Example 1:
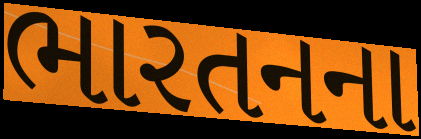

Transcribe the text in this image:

ભારતનના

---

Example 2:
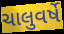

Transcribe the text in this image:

ચાલુવર્ષે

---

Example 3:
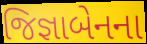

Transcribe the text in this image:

જિજ્ઞાબેનના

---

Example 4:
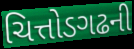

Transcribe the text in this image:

ચિત્તોડગઢની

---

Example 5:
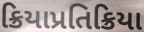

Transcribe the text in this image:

ક્રિયાપ્રતિક્રિયા